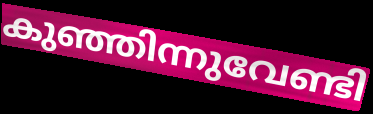
കുഞ്ഞിന്നുവേണ്ടി